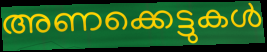
അണക്കെട്ടുകൾ